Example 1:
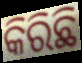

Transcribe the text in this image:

କିରିଛି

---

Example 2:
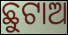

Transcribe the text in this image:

ଛୁଟାଅ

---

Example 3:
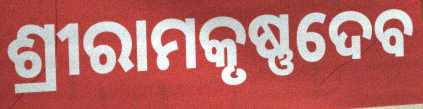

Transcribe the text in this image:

ଶ୍ରୀରାମକୃଷ୍ଣଦେବ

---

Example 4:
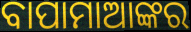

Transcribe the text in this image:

ବାପାମାଆଙ୍କର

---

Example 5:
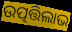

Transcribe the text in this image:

ଉତ୍ପତ୍ତିଲାଭ